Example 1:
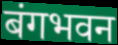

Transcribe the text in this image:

बंगभवन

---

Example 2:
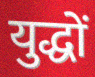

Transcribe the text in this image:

युद्धों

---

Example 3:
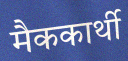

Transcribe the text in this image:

मैककार्थी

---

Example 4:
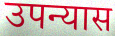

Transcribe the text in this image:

उपन्यास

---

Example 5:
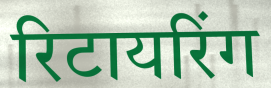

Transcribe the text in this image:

रिटायरिंग